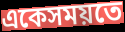
একেসময়তে